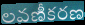
లవణీకరణ